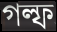
গল্ফ